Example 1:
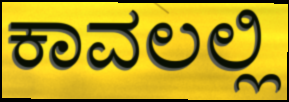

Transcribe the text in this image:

ಕಾವಲಲ್ಲಿ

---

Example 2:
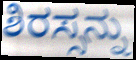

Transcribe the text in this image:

ಶಿರಸ್ಸನ್ನು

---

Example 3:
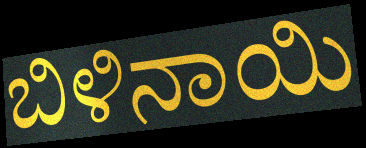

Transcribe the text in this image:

ಬಿಳಿನಾಯಿ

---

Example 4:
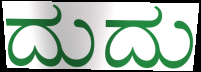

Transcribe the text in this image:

ದುದು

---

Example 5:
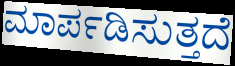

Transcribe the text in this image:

ಮಾರ್ಪಡಿಸುತ್ತದೆ